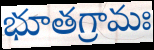
భూతగ్రామః